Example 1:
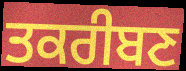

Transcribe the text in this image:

ਤਕਰੀਬਣ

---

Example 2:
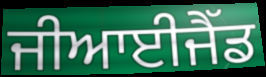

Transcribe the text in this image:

ਜੀਆਈਜੈੱਡ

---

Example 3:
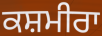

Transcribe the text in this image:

ਕਸ਼ਮੀਰਾ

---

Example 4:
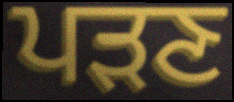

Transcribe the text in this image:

ਪੜਣ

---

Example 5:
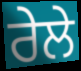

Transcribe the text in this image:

ਰੇਲੇ